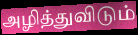
அழித்துவிடும்